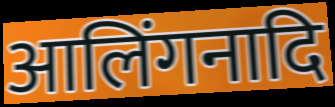
आलिंगनादि